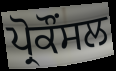
ਪ੍ਰੋਕੌਂਸਲ